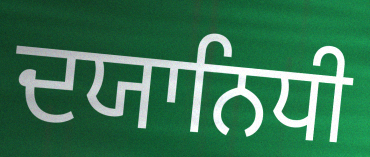
ਦਯਾਨਿਧੀ